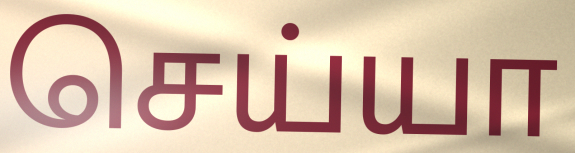
செய்யா